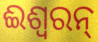
ଈଶ୍ୱରନ୍